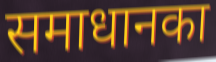
समाधानका